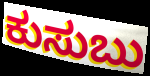
ಕುಸುಬು